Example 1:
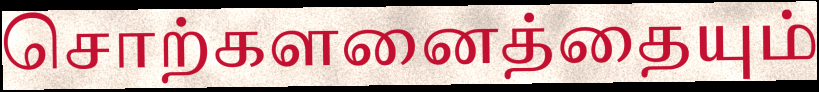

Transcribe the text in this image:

சொற்களனைத்தையும்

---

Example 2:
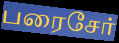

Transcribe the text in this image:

பரைசேர்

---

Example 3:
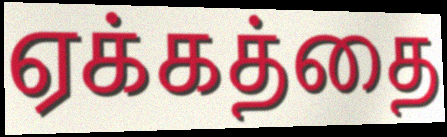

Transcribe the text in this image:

ஏக்கத்தை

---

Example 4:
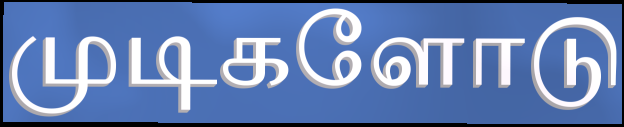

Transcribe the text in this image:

முடிகளோடு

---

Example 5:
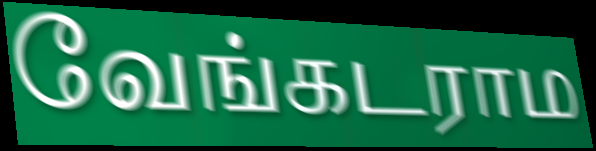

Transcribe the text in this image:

வேங்கடராம